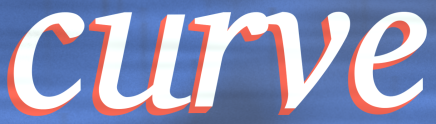
curve